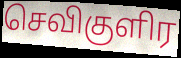
செவிகுளிர